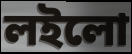
লইলো